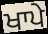
ਖਾਪੇ